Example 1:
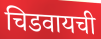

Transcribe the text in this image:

चिडवायची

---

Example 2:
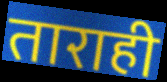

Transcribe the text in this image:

ताराही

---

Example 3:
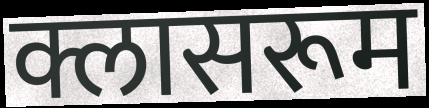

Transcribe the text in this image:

क्लासरूम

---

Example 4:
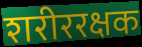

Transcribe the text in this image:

शरीररक्षक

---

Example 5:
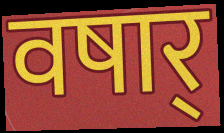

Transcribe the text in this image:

वषार्